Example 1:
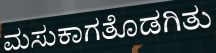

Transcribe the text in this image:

ಮಸುಕಾಗತೊಡಗಿತು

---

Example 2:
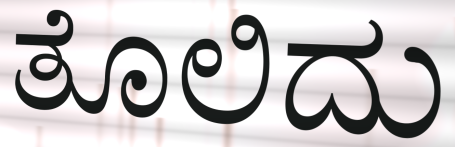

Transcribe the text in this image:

ತೊಲಿದು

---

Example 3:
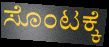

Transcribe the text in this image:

ಸೊಂಟಕ್ಕೆ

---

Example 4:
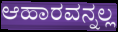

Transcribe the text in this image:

ಆಹಾರವನ್ನಲ್ಲ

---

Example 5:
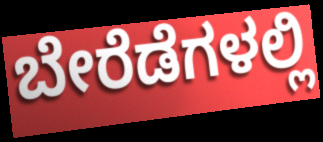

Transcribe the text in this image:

ಬೇರೆಡೆಗಳಲ್ಲಿ